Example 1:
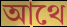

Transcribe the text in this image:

আথে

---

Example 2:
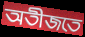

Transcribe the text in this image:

অতীজতে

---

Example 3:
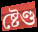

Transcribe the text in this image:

ষ্টেণ্ড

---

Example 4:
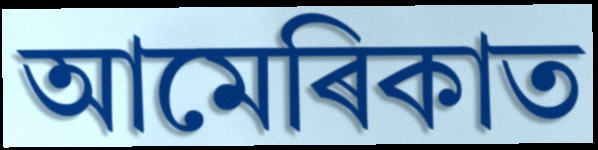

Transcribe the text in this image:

আমেৰিকাত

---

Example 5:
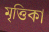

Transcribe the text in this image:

মৃত্তিকা